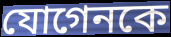
যোগেনকে